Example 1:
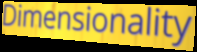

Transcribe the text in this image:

Dimensionality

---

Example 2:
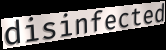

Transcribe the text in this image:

disinfected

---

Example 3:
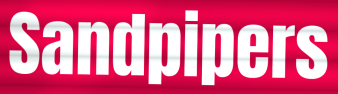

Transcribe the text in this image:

Sandpipers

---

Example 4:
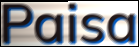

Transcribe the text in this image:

Paisa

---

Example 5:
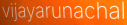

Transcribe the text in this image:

vijayarunachal